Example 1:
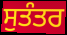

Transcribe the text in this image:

ਸੁਤੰਤਰ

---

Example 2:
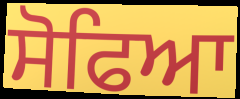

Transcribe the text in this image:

ਸੋਫਿਆ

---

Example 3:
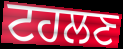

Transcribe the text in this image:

ਟਹਲਣ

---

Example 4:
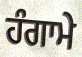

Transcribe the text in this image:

ਹੰਗਾਮੇ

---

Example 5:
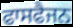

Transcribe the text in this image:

ਫਾਸਫੈਜਨ